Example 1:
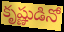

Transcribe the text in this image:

కృష్ణుడినో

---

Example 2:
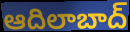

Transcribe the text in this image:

ఆదిలాబాద్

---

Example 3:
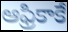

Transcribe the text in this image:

ఆఫ్రికాకే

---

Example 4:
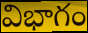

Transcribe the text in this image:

విభాగం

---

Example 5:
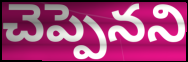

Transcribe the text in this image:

చెప్పెనని